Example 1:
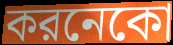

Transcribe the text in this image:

করনেকো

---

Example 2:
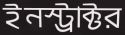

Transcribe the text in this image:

ইনস্ট্রাক্টর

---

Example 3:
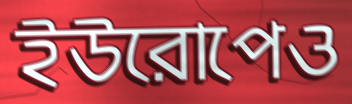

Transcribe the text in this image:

ইউরোপেও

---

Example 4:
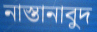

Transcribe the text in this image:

নাস্তানাবুদ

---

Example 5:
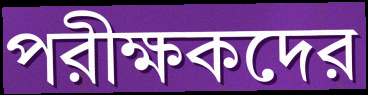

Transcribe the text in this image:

পরীক্ষকদের